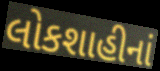
લોકશાહીનાં